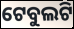
ଟେବୁଲଟି